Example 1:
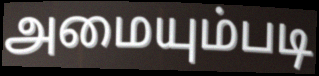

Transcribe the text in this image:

அமையும்படி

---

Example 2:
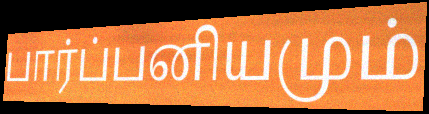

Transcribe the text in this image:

பார்ப்பனியமும்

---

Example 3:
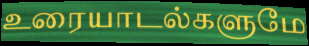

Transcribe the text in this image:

உரையாடல்களுமே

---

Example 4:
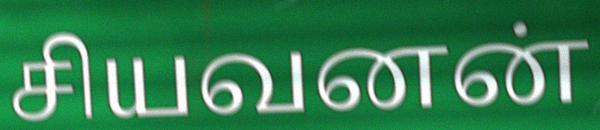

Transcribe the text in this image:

சியவனன்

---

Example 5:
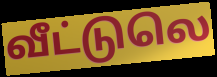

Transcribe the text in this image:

வீட்டுலெ